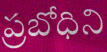
ప్రబోధిని